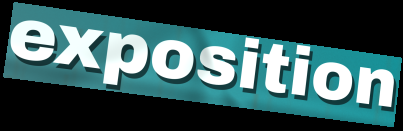
exposition